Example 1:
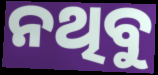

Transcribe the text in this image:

ନଥିବୁ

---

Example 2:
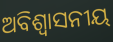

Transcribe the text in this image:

ଅବିଶ୍ୱାସନୀୟ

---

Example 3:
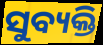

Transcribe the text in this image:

ସୁବ୍ୟକ୍ତି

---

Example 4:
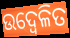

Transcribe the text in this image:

ଉଦ୍ବେଳିତ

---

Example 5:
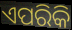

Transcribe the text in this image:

ଏପରିକି